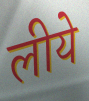
लीये